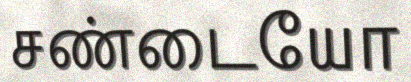
சண்டையோ